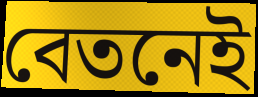
বেতনেই